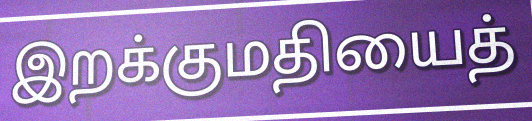
இறக்குமதியைத்